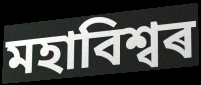
মহাবিশ্বৰ